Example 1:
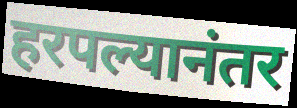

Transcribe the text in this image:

हरपल्यानंतर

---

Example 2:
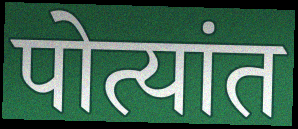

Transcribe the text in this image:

पोत्यांत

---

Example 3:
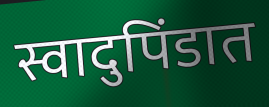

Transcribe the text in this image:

स्वादुपिंडात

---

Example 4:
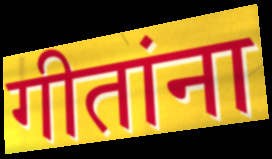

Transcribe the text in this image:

गीतांना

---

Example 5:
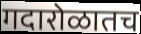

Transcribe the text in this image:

गदारोळातच